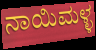
ನಾಯಿಮಳ್ಳ